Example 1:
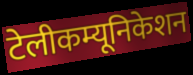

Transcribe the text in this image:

टेलीकम्‍यूनिकेशन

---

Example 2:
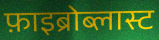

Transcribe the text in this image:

फ़ाइब्रोब्लास्ट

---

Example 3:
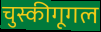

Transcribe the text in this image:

चुस्कीगूगल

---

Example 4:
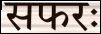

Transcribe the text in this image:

सफरः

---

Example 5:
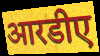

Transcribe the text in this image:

आरडीए